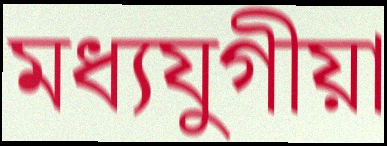
মধ্যযুগীয়া